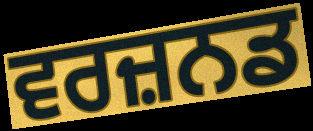
ਵਰਜ਼ਨਡ